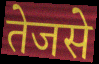
तेजसे